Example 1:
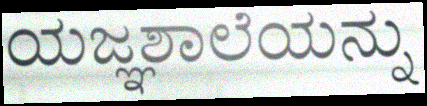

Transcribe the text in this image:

ಯಜ್ಞಶಾಲೆಯನ್ನು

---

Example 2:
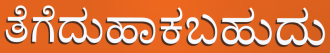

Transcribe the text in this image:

ತೆಗೆದುಹಾಕಬಹುದು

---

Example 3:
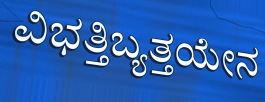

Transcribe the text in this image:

ವಿಭತ್ತಿಬ್ಯತ್ತಯೇನ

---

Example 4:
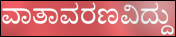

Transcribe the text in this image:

ವಾತಾವರಣವಿದ್ದು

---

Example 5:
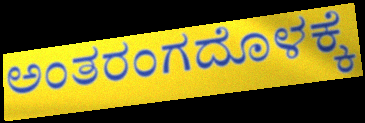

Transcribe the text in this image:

ಅಂತರಂಗದೊಳಕ್ಕೆ